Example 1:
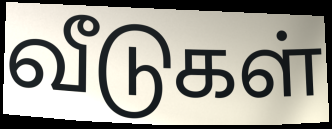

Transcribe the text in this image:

வீடுகள்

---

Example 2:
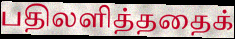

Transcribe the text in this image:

பதிலளித்ததைக்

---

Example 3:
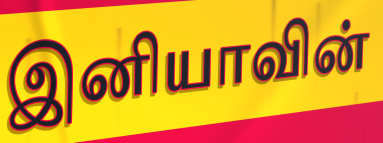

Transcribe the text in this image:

இனியாவின்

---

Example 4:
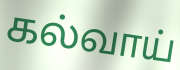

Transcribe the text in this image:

கல்வாய்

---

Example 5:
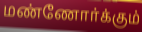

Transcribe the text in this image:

மண்ணோர்க்கும்